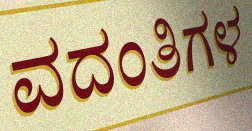
ವದಂತಿಗಳ